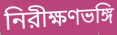
নিরীক্ষণভঙ্গি